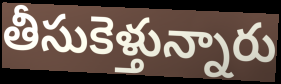
తీసుకెళ్తున్నారు